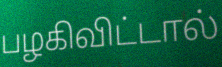
பழகிவிட்டால்